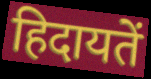
हिदायतें